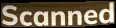
Scanned